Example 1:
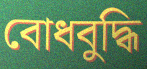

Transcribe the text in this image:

বোধবুদ্ধি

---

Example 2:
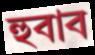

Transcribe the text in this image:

হুবাব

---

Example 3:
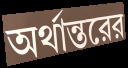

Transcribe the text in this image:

অর্থান্তরের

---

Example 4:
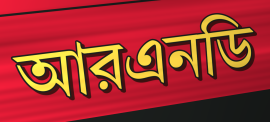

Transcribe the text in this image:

আরএনডি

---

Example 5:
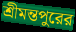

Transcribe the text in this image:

শ্রীমন্তপুরের